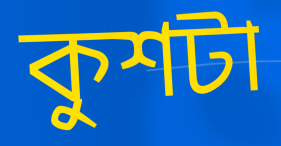
কুশটা